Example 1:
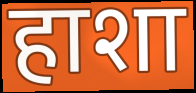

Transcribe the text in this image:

हाशा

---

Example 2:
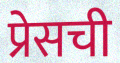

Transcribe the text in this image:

प्रेसची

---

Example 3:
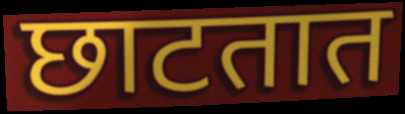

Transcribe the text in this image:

छाटतात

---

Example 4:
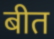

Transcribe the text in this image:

बीत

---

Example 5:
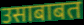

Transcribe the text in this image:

उसाबाबत